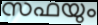
സഫയും